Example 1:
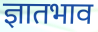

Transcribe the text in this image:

ज्ञातभाव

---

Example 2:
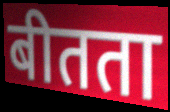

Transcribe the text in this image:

बीतता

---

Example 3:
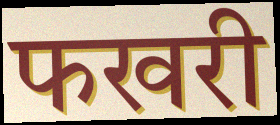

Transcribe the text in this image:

फखरी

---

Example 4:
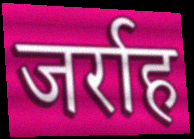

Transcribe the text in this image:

जर्राह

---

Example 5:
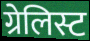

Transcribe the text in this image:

ग्रेलिस्ट